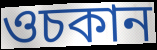
ওচকান